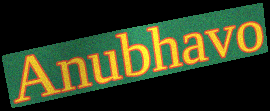
Anubhavo